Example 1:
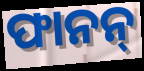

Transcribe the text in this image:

ଫାନନ୍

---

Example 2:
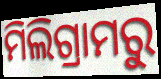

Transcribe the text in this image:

ମିଲିଗ୍ରାମରୁ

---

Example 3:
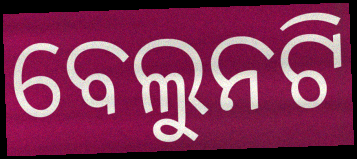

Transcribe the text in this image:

ବେଲୁନଟି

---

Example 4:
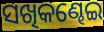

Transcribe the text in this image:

ସଖିକଣ୍ଢେଇ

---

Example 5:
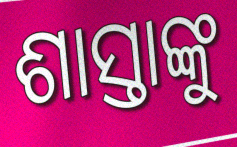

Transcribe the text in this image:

ଶାସ୍ତାଙ୍କୁ